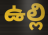
ఉల్లి